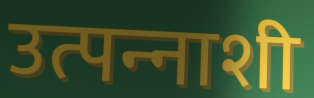
उत्पन्नाशी